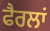
ਫੈਰਲਾਂ